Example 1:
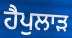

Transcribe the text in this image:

ਹੈਪੁਲਾੜ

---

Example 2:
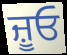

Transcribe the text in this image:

ਜ਼ੂਓ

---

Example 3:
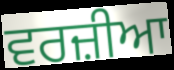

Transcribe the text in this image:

ਵਰਜ਼ੀਆ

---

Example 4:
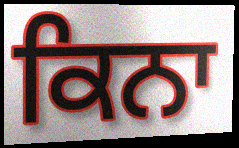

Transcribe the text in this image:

ਕਿਨਾ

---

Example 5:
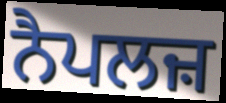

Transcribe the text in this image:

ਨੈਪਲਜ਼